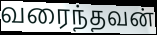
வரைந்தவன்